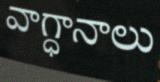
వాగ్ధానాలు